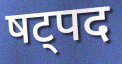
षट्पद